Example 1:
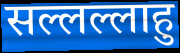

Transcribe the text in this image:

सल्लल्लाहु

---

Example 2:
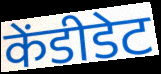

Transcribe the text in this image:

केंडीडेट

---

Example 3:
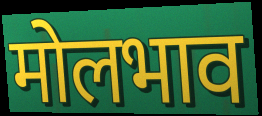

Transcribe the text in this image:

मोलभाव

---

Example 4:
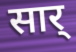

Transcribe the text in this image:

सार्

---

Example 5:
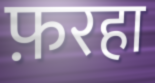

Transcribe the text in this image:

फ़रहा